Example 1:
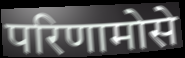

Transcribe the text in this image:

परिणामोसे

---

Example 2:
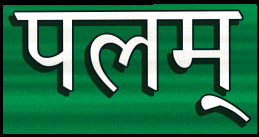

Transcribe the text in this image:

पलम्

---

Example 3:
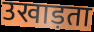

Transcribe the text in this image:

उखाड़ता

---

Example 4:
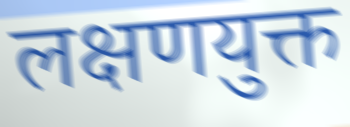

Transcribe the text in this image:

लक्षणयुक्त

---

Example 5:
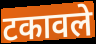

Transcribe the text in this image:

टकावले